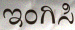
ಇಂಗಿಸಿ